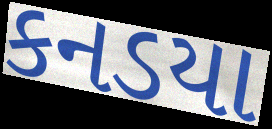
કનડયા